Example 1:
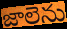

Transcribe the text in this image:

జాలెను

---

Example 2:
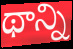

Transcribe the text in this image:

థాన్ని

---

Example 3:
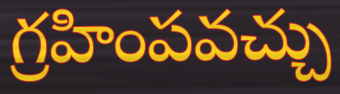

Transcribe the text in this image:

గ్రహింపవచ్చు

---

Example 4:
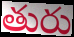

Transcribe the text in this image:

తురు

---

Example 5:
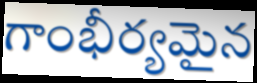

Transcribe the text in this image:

గాంభీర్యమైన